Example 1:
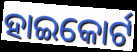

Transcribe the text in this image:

ହାଇକୋର୍ଟ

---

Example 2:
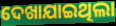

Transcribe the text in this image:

ଦେଖାଯାଇଥିଲା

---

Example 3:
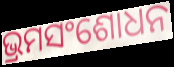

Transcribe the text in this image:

ଭ୍ରମସଂଶୋଧନ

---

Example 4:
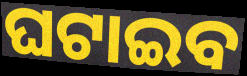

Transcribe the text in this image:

ଘଟାଇବ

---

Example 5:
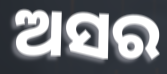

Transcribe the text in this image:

ଅସର